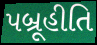
પબ્રૂહીતિ